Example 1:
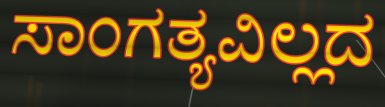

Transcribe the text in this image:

ಸಾಂಗತ್ಯವಿಲ್ಲದ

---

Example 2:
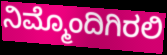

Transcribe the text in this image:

ನಿಮ್ಮೊಂದಿಗಿರಲಿ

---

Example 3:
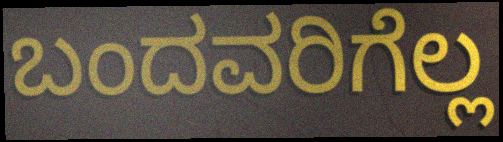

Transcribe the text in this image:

ಬಂದವರಿಗೆಲ್ಲ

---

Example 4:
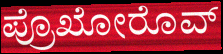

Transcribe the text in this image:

ಪ್ರೊಖೋರೊವ್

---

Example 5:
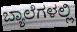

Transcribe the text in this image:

ಬ್ಯಾಲೆಗಳಲ್ಲಿ